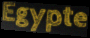
Egypte